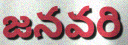
జనవరి